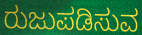
ರುಜುಪಡಿಸುವ